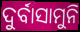
ଦୁର୍ବାସାମୁନି